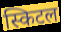
स्किटल